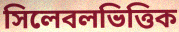
সিলেবলভিত্তিক